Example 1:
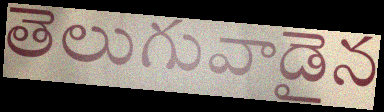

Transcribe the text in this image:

తెలుగువాడైన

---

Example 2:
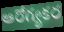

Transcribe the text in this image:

ఆరోగ్యకర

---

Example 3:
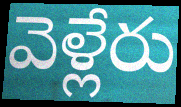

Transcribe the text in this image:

వెళ్లేరు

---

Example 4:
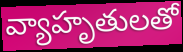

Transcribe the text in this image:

వ్యాహృతులతో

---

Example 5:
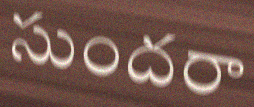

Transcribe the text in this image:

సుందరా